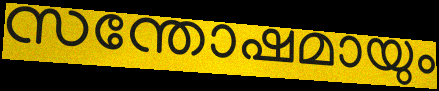
സന്തോഷമായും